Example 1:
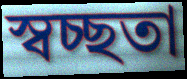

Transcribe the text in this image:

স্বচ্ছতা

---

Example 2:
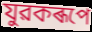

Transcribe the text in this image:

যুৱকৰূপে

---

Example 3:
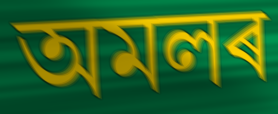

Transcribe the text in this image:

অমলৰ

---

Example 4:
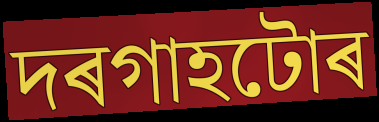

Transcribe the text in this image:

দৰগাহটোৰ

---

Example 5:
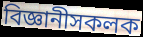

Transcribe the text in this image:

বিজ্ঞানীসকলক